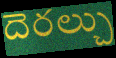
దెరల్చు